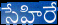
సేహిరే